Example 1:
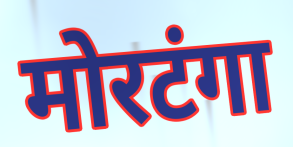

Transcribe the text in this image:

मोरटंगा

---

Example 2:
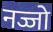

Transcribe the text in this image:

नज्जो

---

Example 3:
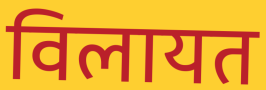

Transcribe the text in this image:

विलायत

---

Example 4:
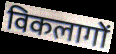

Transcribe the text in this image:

विकलागों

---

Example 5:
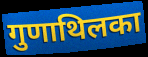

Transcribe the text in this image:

गुणाथिलका